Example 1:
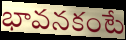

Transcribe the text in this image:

భావనకంటే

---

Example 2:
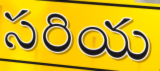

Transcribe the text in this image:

సరియ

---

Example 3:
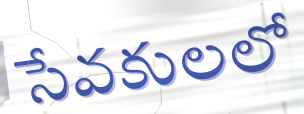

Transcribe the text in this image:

సేవకులలో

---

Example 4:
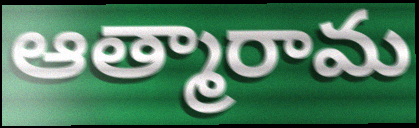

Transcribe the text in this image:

ఆత్మారామ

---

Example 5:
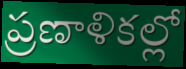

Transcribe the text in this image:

ప్రణాళికల్లో